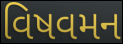
વિષવમન